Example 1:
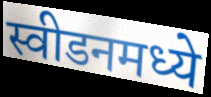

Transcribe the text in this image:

स्वीडनमध्ये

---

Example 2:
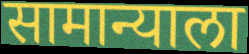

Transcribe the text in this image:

सामान्याला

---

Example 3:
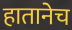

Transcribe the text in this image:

हातानेच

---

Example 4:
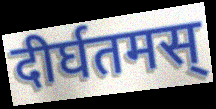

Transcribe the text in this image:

दीर्घतमस्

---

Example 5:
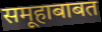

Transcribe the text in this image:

समूहाबाबत